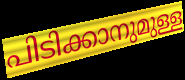
പിടിക്കാനുമുള്ള